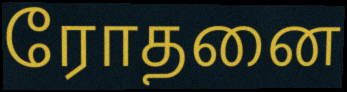
ரோதனை